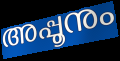
അപ്പൂനും